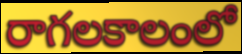
రాగలకాలంలో